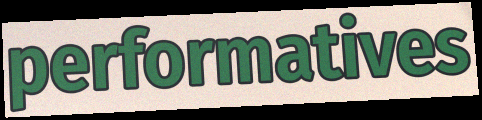
performatives